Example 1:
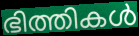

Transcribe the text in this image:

ഭിത്തികൾ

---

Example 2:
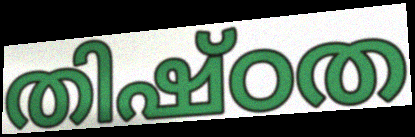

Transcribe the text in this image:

തിഷ്ഠത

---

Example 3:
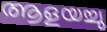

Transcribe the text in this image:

ആളയച്ചു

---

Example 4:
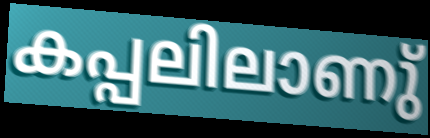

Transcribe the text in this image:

കപ്പലിലാണു്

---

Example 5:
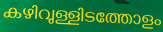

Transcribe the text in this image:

കഴിവുള്ളിടത്തോളം